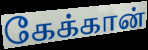
கேக்கான்